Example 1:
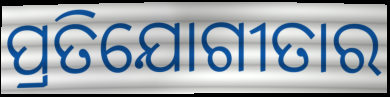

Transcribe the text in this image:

ପ୍ରତିଯୋଗୀତାର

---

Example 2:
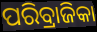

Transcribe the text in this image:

ପରିବ୍ରାଜିକା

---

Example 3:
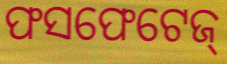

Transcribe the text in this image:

ଫସଫେଟେଜ୍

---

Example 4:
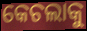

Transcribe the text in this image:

କେଚଲାକୁ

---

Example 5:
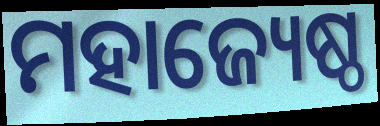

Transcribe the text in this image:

ମହାଜ୍ୟେଷ୍ଠ